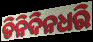
ତିନିଦିନଧରି